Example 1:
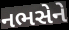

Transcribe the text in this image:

નભસેને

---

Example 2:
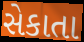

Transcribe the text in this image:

સેકાતા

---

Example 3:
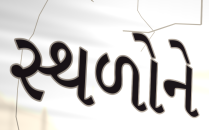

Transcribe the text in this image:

સ્થળોને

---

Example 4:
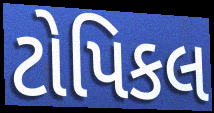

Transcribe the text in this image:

ટોપિકલ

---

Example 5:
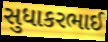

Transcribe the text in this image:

સુધાકરભાઈ